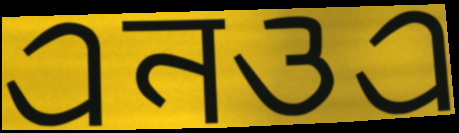
এনওএ